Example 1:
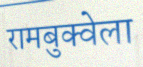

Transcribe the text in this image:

रामबुक्वेला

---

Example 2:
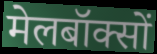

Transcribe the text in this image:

मेलबॉक्सों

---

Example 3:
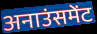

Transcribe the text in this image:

अनाउंसमेंट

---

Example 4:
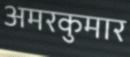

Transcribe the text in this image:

अमरकुमार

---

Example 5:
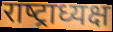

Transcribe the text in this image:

राष्ट्राध्यक्ष